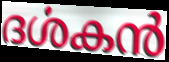
ദൎശകൻ